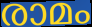
രാമം